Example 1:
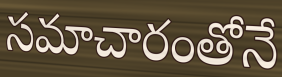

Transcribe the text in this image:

సమాచారంతోనే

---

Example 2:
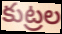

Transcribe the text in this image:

కుట్రల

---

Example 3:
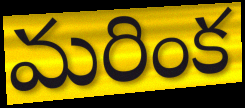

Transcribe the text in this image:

మరింక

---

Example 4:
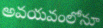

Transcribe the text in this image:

అవయవంలోనూ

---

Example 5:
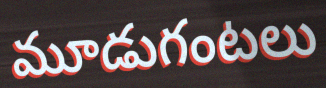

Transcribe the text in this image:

మూడుగంటలు